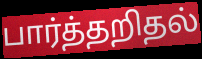
பார்த்தறிதல்